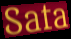
Sata